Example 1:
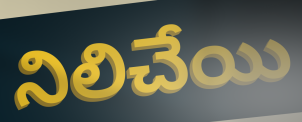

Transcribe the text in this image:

నిలిచేయి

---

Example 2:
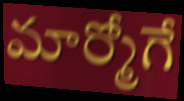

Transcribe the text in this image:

మార్మోగే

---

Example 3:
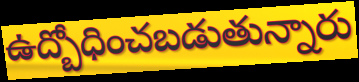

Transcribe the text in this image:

ఉద్బోధించబడుతున్నారు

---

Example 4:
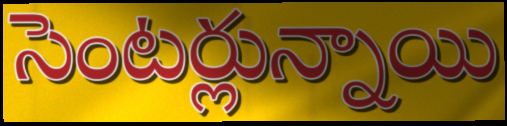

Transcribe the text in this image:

సెంటర్లున్నాయి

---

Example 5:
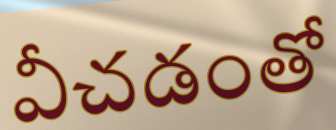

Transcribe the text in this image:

వీచడంతో